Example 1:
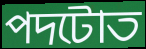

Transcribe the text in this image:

পদটোত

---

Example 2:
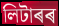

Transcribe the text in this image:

লিটাৰৰ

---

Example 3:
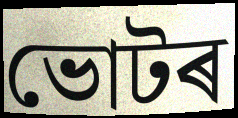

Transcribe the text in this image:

ভোটৰ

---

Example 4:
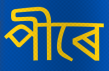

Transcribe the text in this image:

পীৰে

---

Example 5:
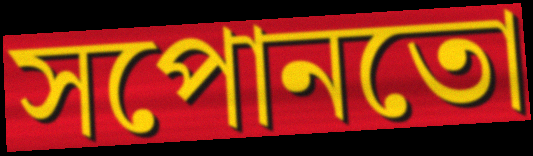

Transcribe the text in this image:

সপোনতো